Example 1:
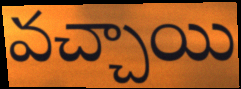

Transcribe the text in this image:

వచ్చాయి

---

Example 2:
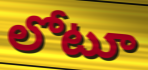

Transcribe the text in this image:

లోటూ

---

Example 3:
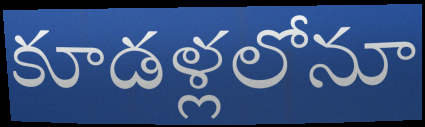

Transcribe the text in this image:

కూడళ్లలోనూ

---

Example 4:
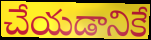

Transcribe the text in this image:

చేయడానికే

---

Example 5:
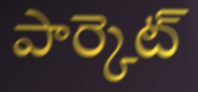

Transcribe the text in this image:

పార్కెట్